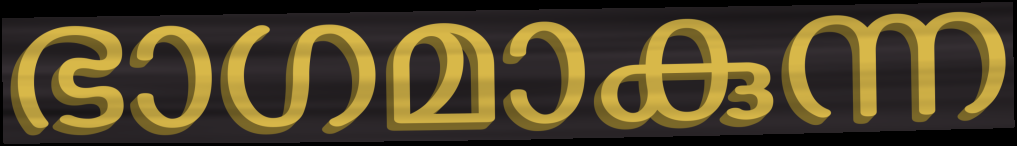
ഭാഗമാകുന്ന